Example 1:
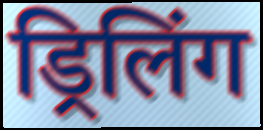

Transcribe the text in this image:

ड्रिलिंग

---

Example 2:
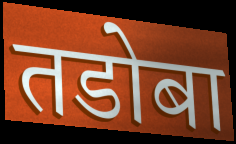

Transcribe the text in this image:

तडोबा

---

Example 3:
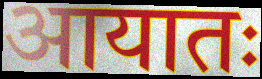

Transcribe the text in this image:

आयातः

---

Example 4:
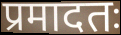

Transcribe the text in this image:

प्रमादतः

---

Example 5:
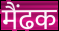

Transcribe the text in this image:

मैंढक